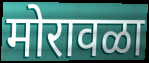
मोरावळा